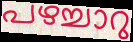
പഴച്ചാറു